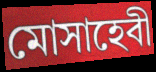
মোসাহেবী